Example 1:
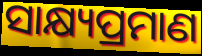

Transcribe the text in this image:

ସାକ୍ଷ୍ୟପ୍ରମାଣ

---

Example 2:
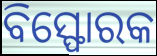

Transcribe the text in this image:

ବିସ୍ଫୋରକ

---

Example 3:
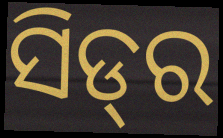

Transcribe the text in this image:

ସିଡ୍‌ର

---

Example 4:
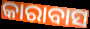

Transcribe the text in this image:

କାରାବାସ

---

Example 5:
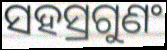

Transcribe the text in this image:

ସହସ୍ରଗୁଣଂ